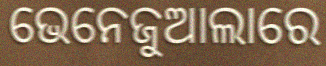
ଭେନେଜୁଆଲାରେ